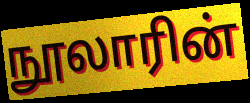
நூலாரின்